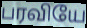
பரவியே